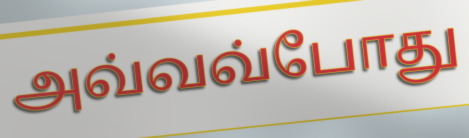
அவ்வவ்போது